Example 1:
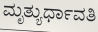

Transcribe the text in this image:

ಮೃತ್ಯುರ್ಧಾವತಿ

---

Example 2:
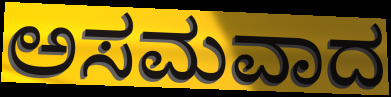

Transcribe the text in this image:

ಅಸಮವಾದ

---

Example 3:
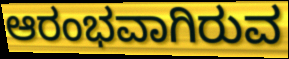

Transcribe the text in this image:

ಆರಂಭವಾಗಿರುವ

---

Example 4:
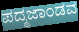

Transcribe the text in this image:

ಪದ್ಮಜಾಂಡವ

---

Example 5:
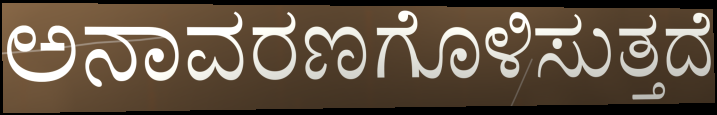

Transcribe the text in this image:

ಅನಾವರಣಗೊಳಿಸುತ್ತದೆ